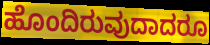
ಹೊಂದಿರುವುದಾದರೂ